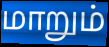
மாறும்